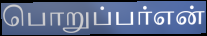
பொறுப்பர்என்